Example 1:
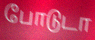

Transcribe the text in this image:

போடுடா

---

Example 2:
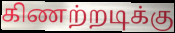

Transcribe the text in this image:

கிணற்றடிக்கு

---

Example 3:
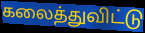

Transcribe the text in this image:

கலைத்துவிட்டு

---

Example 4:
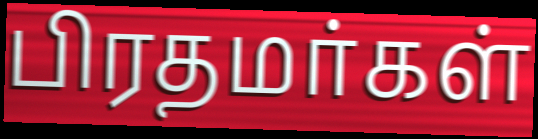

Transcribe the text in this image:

பிரதமர்கள்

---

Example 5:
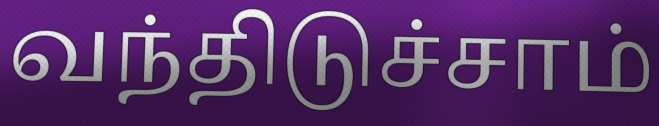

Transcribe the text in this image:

வந்திடுச்சாம்